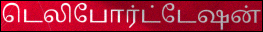
டெலிபோர்ட்டேஷன்